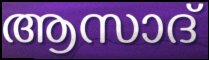
ആസാദ്